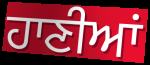
ਹਾਣੀਆਂ